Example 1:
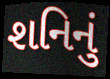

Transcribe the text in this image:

શનિનું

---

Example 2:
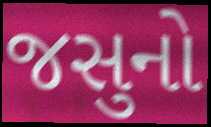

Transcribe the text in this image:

જસુનો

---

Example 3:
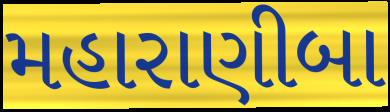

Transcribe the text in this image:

મહારાણીબા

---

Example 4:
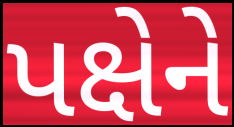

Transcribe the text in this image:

પક્ષેને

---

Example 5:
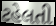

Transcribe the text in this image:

ટહેલતી